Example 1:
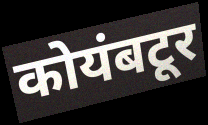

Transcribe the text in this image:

कोयंबटूर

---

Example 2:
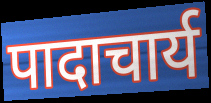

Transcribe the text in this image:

पादाचार्य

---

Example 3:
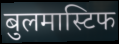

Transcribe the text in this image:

बुलमास्टिफ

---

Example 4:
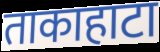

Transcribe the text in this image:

ताकाहाटा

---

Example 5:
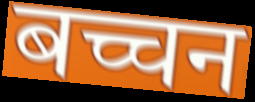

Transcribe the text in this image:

बच्‍चन